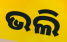
ଭଲି